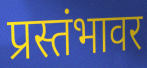
प्रस्तंभावर